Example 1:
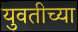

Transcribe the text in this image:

युवतीच्या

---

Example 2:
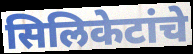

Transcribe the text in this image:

सिलिकेटांचे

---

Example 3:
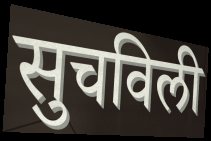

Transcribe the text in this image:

सुचविली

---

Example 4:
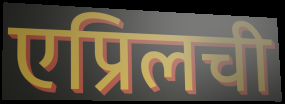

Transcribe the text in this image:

एप्रिलची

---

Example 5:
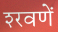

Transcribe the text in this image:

श्रवणें